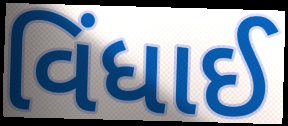
વિંધાઈ